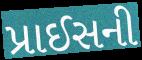
પ્રાઈસની